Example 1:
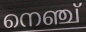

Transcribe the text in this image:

നെഞ്ച്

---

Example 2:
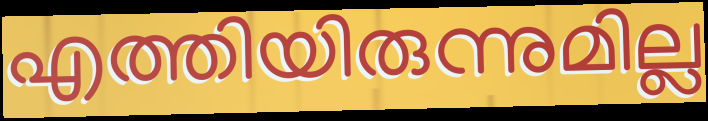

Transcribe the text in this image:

എത്തിയിരുന്നുമില്ല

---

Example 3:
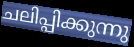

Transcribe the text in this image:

ചലിപ്പിക്കുന്നു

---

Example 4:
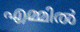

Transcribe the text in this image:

എമ്മിൽ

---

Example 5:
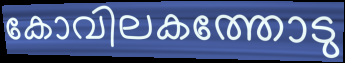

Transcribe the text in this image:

കോവിലകത്തോടു